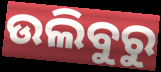
ଉଲିବୁରୁ